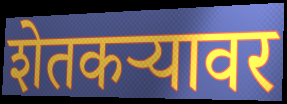
शेतकऱ्यावर